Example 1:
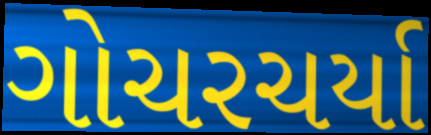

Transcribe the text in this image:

ગોચરચર્યા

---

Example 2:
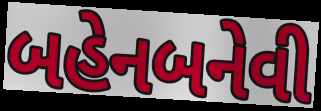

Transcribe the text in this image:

બહેનબનેવી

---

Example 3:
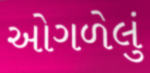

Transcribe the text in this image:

ઓગળેલું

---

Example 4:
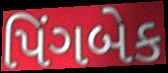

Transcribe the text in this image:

પિંગબેક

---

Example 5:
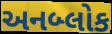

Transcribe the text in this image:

અનબ્લોક